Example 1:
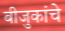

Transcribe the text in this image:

बीजुकांचे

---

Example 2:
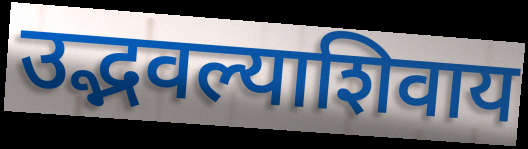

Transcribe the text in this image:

उद्भवल्याशिवाय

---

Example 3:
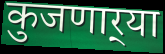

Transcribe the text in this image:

कुजणार्या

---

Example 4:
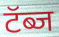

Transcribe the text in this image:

टॅब्ज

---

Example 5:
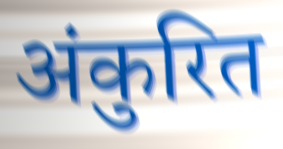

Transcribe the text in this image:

अंकुरित